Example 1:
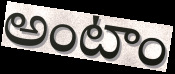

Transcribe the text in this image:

అంటాం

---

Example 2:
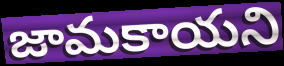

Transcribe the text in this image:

జామకాయని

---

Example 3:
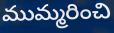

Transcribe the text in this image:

ముమ్మరించి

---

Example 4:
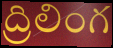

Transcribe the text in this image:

ద్రిలింగ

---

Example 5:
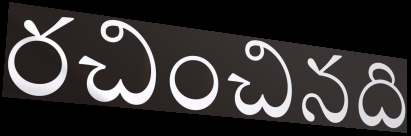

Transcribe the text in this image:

రచించినది